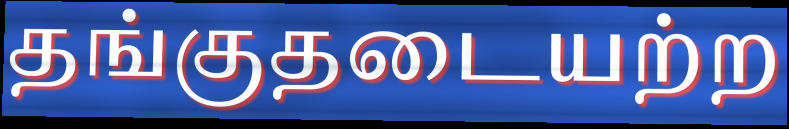
தங்குதடையற்ற